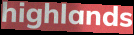
highlands